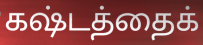
கஷ்டத்தைக்